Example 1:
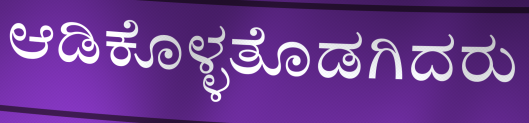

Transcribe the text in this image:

ಆಡಿಕೊಳ್ಳತೊಡಗಿದರು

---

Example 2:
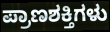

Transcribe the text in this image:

ಪ್ರಾಣಶಕ್ತಿಗಳು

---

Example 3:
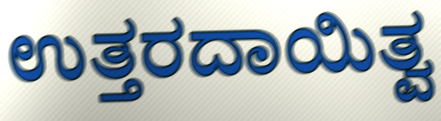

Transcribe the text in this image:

ಉತ್ತರದಾಯಿತ್ವ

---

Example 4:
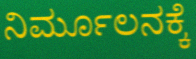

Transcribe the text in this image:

ನಿರ್ಮೂಲನಕ್ಕೆ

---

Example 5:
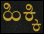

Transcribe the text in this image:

ಹಿಕ್ಕಿ